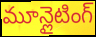
మూన్లైటింగ్